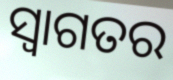
ସ୍ଵାଗତର